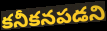
కనీకనపడని